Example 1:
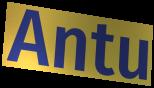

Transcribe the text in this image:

Antu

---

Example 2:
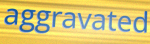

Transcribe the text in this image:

aggravated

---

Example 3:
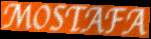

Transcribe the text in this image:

MOSTAFA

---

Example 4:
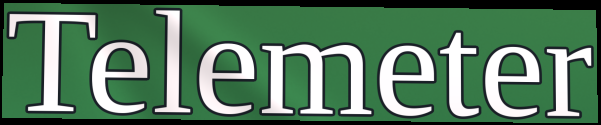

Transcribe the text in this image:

Telemeter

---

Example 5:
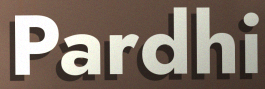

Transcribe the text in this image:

Pardhi